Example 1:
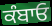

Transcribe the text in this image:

ਕੰਬਾਓ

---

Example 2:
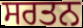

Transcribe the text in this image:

ਸਰਤਨ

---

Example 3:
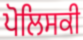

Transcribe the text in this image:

ਪੋਲਿਸਕੀ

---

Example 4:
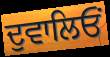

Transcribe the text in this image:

ਦੁਵਾਲਿਓਂ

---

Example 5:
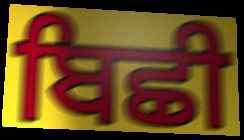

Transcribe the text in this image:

ਬਿਛੀ